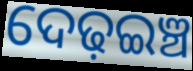
ଦେଢ଼ଇଞ୍ଚ